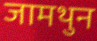
जामथुन